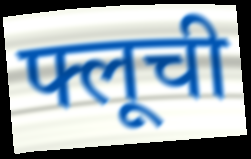
फ्लूची